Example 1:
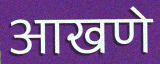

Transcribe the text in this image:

आखणे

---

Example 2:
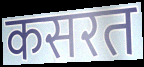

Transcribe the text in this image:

कसरत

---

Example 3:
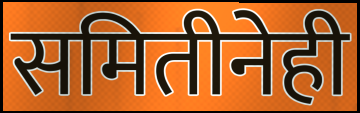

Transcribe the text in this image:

समितीनेही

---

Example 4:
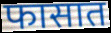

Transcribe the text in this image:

फासात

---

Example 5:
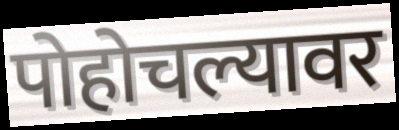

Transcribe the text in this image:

पोहोचल्यावर